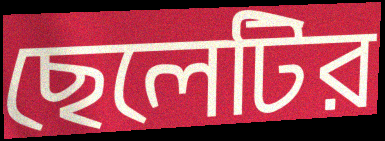
ছেলেটির